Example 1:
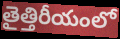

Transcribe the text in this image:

తైత్తిరీయంలో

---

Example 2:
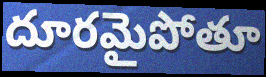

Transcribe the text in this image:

దూరమైపోతూ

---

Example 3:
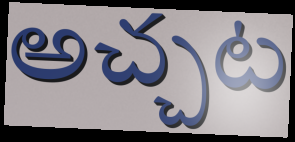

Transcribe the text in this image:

అచ్చట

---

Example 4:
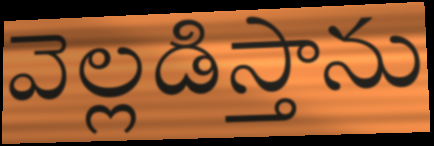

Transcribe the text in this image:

వెల్లడిస్తాను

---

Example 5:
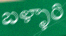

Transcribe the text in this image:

బళ్ళారి